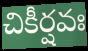
చికీర్షవః